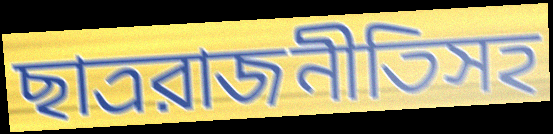
ছাত্ররাজনীতিসহ